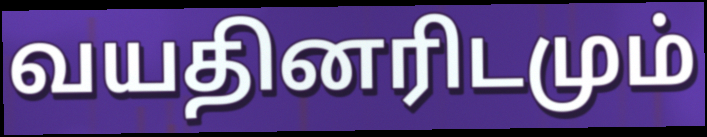
வயதினரிடமும்